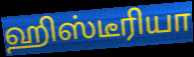
ஹிஸ்டீரியா